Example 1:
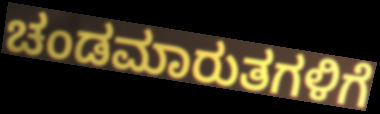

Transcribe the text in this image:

ಚಂಡಮಾರುತಗಳಿಗೆ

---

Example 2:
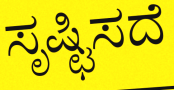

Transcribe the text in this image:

ಸೃಷ್ಟಿಸದೆ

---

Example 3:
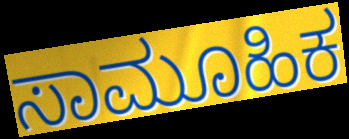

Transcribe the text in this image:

ಸಾಮೂಹಿಕ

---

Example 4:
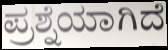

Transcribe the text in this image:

ಪ್ರಶ್ನೆಯಾಗಿದೆ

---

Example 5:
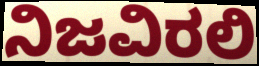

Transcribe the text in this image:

ನಿಜವಿರಲಿ